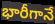
భారీగానే